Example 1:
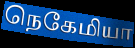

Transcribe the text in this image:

நெகேமியா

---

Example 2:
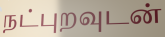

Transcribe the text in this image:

நட்புறவுடன்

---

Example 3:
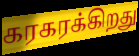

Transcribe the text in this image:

கரகரக்கிறது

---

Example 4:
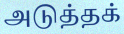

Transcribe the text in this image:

அடுத்தக்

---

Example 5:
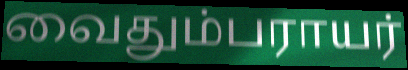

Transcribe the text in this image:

வைதும்பராயர்